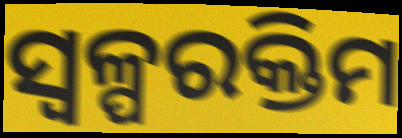
ସ୍ୱଳ୍ପରକ୍ତିମ